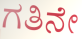
ಗತಿನೇ